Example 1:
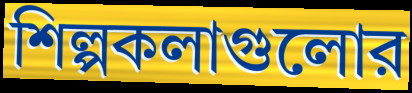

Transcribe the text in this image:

শিল্পকলাগুলোর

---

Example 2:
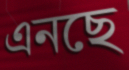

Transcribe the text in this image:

এনছে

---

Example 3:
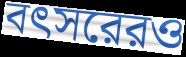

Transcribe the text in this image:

বৎসরেরও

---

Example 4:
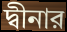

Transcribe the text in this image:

দ্বীনার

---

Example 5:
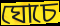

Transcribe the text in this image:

ঘোচে